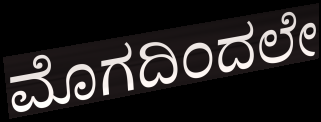
ಮೊಗದಿಂದಲೇ